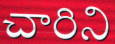
చారిని